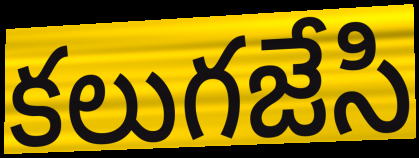
కలుగజేసి